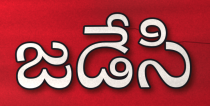
జడేసి